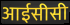
आईसीसी